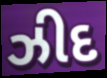
ઝીદ